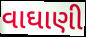
વાઘાણી